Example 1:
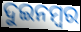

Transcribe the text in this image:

ଦୁଇନମ୍ୱର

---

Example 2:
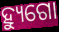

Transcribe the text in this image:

ହ୍ୟୁଗୋ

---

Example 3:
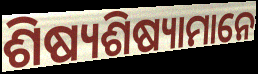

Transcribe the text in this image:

ଶିଷ୍ୟଶିଷ୍ୟାମାନେ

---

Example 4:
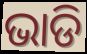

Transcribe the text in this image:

ଭାଡି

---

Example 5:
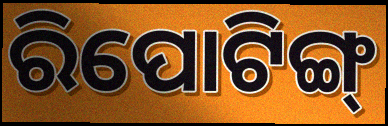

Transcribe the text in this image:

ରିପୋଟିଙ୍ଗ୍